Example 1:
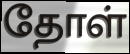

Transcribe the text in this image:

தோள்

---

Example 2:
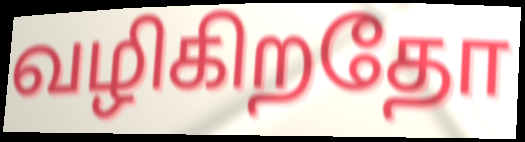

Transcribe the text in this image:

வழிகிறதோ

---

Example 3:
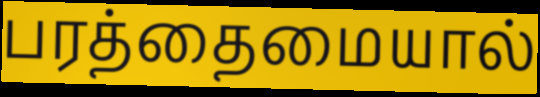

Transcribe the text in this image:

பரத்தைமையால்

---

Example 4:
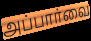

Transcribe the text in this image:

அப்பார்வை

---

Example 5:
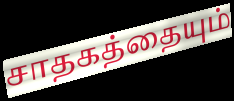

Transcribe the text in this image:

சாதகத்தையும்